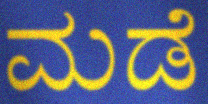
ಮಡೆ